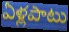
ఏళ్లపాటు